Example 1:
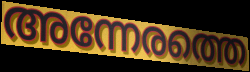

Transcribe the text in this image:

അന്നേരത്തെ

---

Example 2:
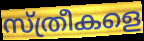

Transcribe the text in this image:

സ്ത്രീകളെ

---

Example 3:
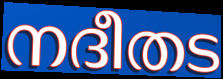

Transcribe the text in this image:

നദീതട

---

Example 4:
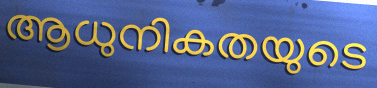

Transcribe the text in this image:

ആധുനികതയുടെ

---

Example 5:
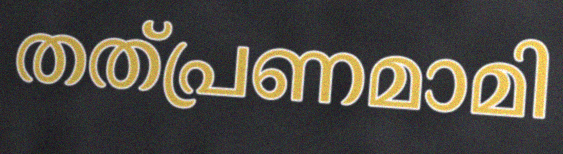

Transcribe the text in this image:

തത്പ്രണമാമി